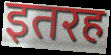
इतरह